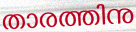
താരത്തിനു